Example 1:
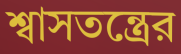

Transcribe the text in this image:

শ্বাসতন্ত্রের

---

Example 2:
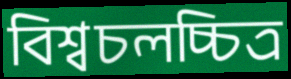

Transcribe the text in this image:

বিশ্বচলচ্চিত্র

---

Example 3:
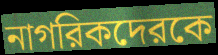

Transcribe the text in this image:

নাগরিকদেরকে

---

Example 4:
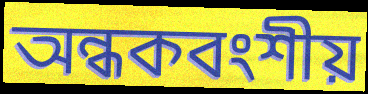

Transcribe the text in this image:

অন্ধকবংশীয়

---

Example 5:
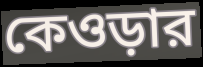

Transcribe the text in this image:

কেওড়ার